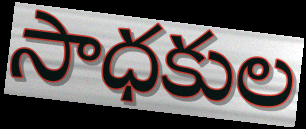
సాధకుల